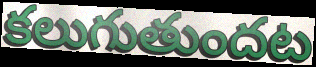
కలుగుతుందట